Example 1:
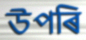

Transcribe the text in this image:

উপৰি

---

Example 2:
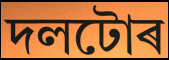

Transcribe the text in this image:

দলটোৰ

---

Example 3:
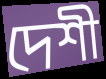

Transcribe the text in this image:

দেশী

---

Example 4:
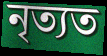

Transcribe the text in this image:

নৃত্যত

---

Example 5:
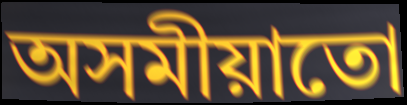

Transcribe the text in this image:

অসমীয়াতো